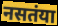
नसतंया